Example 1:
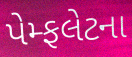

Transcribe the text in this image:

પેમ્ફલેટના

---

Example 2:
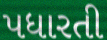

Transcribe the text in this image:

પધારતી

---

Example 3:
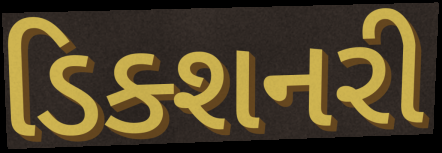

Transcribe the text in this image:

ડિક્શનરી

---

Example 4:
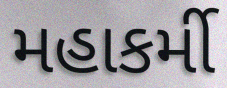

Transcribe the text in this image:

મહાકર્મી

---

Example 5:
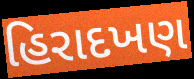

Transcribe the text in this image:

હિરાદખણ